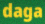
daga